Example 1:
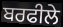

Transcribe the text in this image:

ਬਰਫੀਲੇ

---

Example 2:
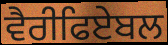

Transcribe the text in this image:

ਵੈਰੀਫਿਏਬਲ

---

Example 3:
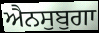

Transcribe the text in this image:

ਐਨਸੁਬੁਗਾ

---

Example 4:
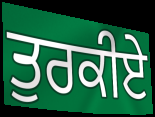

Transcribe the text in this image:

ਤੁਰਕੀਏ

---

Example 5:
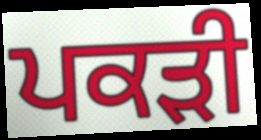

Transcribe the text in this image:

ਪਕੜੀ